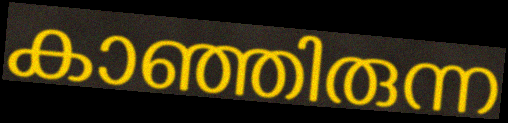
കാഞ്ഞിരുന്ന